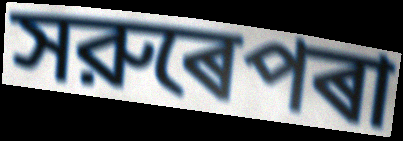
সৰুৰেপৰা